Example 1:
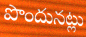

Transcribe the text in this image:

పొందునట్లు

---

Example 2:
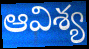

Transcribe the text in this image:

ఆవిశ్య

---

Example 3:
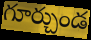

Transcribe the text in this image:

గూర్చుండ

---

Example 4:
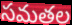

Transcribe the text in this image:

సమతల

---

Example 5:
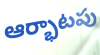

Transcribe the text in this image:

ఆర్భాటపు